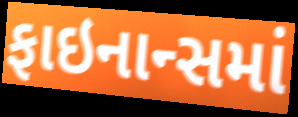
ફાઇનાન્સમાં